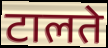
टालते